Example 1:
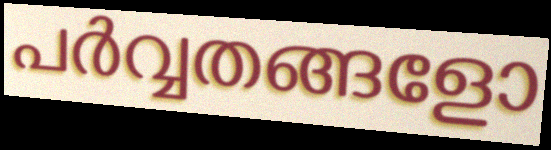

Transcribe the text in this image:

പർവ്വതങ്ങളോ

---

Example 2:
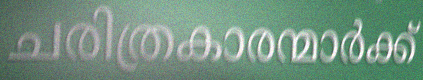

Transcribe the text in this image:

ചരിത്രകാരന്മാർക്ക്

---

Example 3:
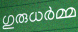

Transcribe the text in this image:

ഗുരുധർമ്മ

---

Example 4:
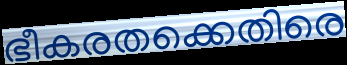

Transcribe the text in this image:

ഭീകരതക്കെതിരെ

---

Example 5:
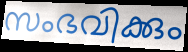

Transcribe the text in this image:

സംഭവിക്കും